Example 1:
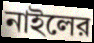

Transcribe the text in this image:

নাইলের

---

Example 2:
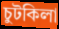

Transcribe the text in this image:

চুটকিলা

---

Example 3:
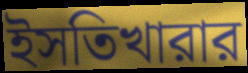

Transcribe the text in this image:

ইসতিখারার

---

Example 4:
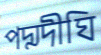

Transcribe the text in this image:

পদ্মদীঘি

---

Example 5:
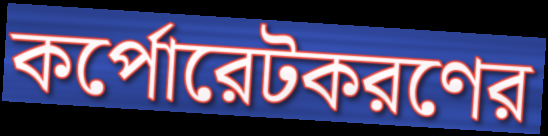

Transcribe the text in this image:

কর্পোরেটকরণের